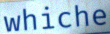
whiche